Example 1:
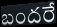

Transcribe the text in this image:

బందరే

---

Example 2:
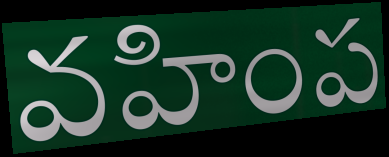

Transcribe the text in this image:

వహింప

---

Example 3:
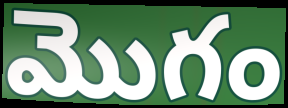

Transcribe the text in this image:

మొగం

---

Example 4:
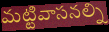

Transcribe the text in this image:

మట్టివాసనల్ని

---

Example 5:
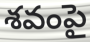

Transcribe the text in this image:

శవంపై